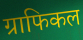
ग्राफिकल